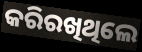
କରିରଖିଥିଲେ